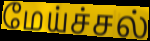
மேய்ச்சல்